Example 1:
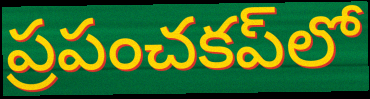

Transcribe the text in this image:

ప్రపంచకప్‌లో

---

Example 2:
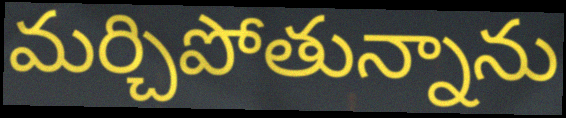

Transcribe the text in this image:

మర్చిపోతున్నాను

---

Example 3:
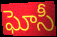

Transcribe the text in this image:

ఘోసీ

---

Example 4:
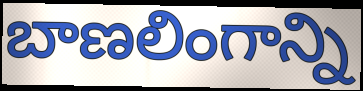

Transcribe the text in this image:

బాణలింగాన్ని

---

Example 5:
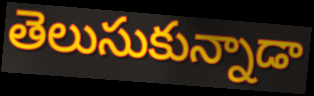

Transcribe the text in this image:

తెలుసుకున్నాడా